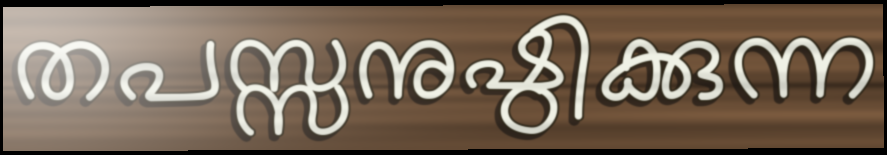
തപസ്സനുഷ്ഠിക്കുന്ന